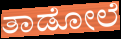
ತಾಡೋಲೆ